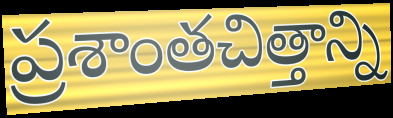
ప్రశాంతచిత్తాన్ని